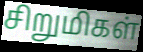
சிறுமிகள்